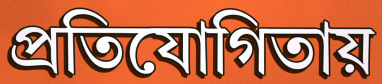
প্রতিযোগিতায়